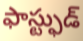
ఫాస్ట్ఫుడ్